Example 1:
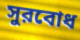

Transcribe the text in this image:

সুরবোধ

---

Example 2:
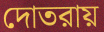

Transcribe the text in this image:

দোতরায়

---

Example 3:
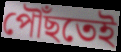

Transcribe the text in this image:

পৌঁছতেই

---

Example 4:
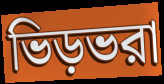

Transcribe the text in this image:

ভিড়ভরা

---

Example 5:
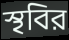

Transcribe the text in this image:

স্থবির